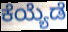
ಕೆಯ್ಯೆಡೆ